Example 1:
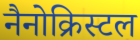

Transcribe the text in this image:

नैनोक्रिस्टल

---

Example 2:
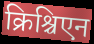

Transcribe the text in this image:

क्रिश्चिएन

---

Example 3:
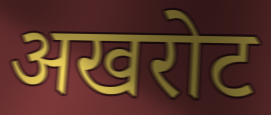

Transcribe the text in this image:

अखरोट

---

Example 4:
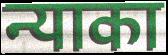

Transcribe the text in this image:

न्याका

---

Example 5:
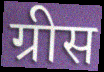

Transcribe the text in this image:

ग्रीस